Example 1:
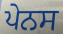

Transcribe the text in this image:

ਪੇਨਸ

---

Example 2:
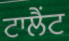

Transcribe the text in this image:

ਟਾਲੈਂਟ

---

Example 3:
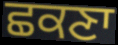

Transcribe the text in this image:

ਛਕਣਾ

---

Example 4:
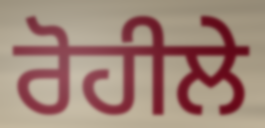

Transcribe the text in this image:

ਰੋਹੀਲੇ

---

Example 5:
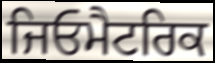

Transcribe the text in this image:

ਜਿਓਮੈਟਰਿਕ